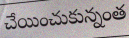
చేయించుకున్నంత